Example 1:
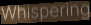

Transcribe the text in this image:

Whispering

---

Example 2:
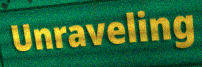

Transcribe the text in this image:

Unraveling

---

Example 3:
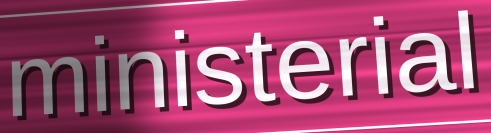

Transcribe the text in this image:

ministerial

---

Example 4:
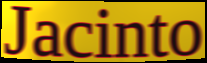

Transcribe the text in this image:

Jacinto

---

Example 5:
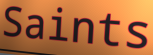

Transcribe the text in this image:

Saints